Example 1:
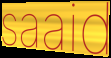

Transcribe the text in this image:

saaid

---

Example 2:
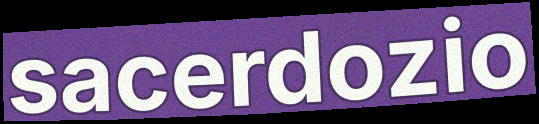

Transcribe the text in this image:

sacerdozio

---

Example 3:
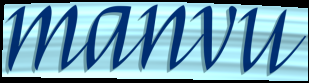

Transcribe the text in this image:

manvu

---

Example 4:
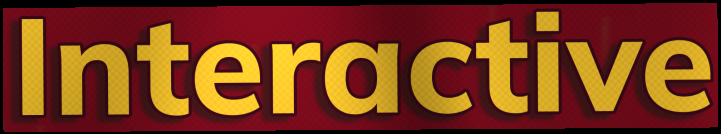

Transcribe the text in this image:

Interactive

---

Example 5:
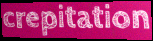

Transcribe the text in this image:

crepitation